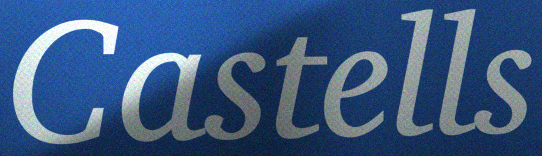
Castells